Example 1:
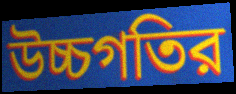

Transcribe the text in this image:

উচ্চগতির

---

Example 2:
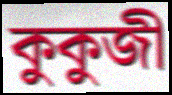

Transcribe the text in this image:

কুকুজী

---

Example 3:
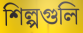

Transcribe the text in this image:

শিল্পগুলি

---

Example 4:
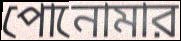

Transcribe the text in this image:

পোনোমার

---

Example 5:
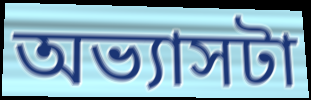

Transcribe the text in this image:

অভ্যাসটা